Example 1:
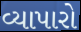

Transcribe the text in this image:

વ્યાપારો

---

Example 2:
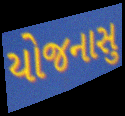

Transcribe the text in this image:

યોજનાસુ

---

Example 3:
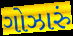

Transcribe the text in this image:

ગોઝારું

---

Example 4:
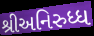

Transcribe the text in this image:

શ્રીઅનિરુધ્ધ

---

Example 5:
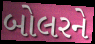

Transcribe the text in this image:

બોલરને